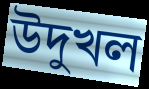
উদুখল